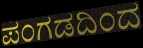
ಪಂಗಡದಿಂದ